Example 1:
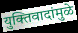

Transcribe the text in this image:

युक्तिवादांमुळे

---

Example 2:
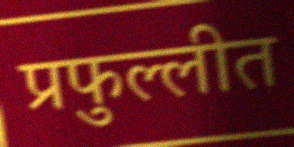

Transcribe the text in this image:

प्रफुल्लीत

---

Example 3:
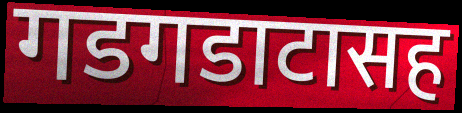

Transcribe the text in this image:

गडगडाटासह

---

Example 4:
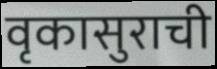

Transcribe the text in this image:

वृकासुराची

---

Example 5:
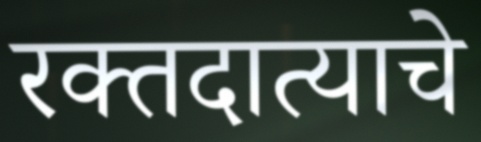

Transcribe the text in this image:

रक्तदात्याचे